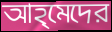
আহ্‌মেদের